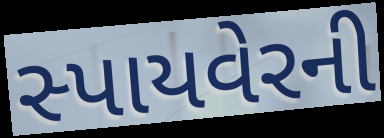
સ્પાયવેરની